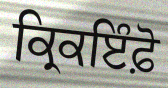
ਕ੍ਰਿਕਇੰਫ਼ੋ